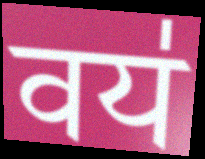
वय॑